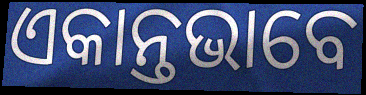
ଏକାନ୍ତଭାବେ